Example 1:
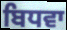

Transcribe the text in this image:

ਬਿਧਵਾ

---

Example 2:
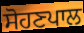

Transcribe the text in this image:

ਸੋਹਣਪਾਲ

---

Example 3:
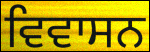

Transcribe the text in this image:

ਵਿਵਾਸਨ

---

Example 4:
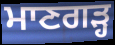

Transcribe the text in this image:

ਮਾਣਗੜ੍ਹ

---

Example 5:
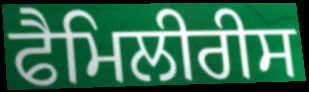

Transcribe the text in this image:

ਫੈਮਿਲੀਰੀਸ